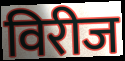
विरीज